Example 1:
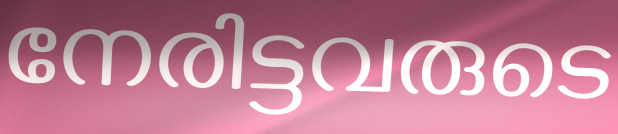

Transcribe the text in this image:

നേരിട്ടവരുടെ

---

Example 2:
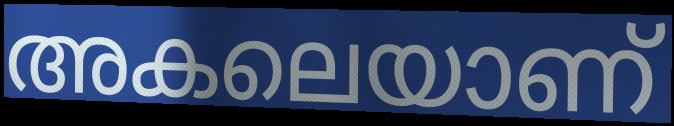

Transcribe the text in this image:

അകലെയാണ്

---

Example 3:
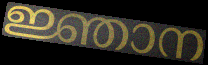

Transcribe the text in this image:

ജ്ഞാന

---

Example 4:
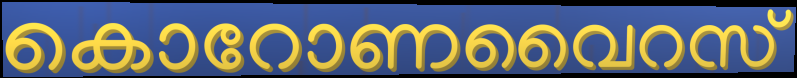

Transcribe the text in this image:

കൊറോണവൈറസ്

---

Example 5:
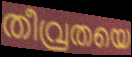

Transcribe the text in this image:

തീവ്രതയെ